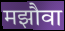
मझौवा